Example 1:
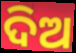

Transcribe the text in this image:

ଦିଅ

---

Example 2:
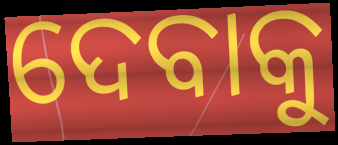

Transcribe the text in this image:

ଦେବାକୁ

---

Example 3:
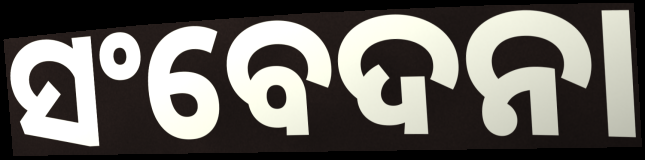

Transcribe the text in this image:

ସଂବେଦନା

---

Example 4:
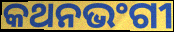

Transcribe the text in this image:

କଥନଭଂଗୀ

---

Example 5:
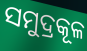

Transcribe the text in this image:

ସମୁଦ୍ରକୂଳ